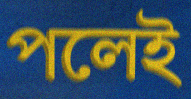
পলেই